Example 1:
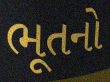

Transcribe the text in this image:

ભૂતનો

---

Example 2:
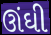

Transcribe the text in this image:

ઊંઘી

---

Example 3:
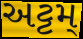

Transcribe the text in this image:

અટ્ટમ્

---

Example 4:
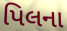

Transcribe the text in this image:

પિલના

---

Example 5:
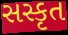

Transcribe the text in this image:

સસ્કૃત